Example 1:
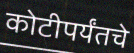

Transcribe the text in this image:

कोटीपर्यंतचे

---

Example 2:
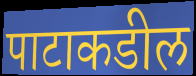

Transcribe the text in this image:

पाटाकडील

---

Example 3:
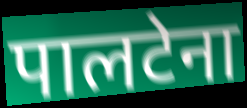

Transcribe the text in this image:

पालटेना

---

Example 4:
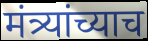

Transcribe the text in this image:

मंत्र्यांच्याच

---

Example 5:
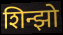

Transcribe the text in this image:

शिन्झो